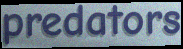
predators